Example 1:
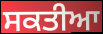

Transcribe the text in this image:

ਸਕਤੀਆ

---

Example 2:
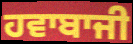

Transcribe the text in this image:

ਹਵਾਬਾਜੀ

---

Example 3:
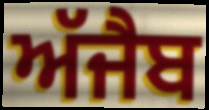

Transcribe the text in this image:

ਅੱਜੈਬ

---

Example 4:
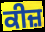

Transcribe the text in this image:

ਕੀਜ਼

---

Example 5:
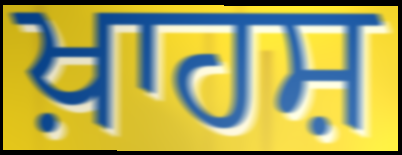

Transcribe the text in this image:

ਖ਼ਾਹਸ਼